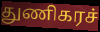
துணிகரச்